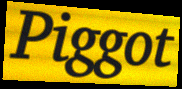
Piggot